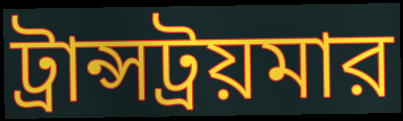
ট্রান্সট্রয়মার